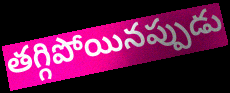
తగ్గిపోయినప్పుడు